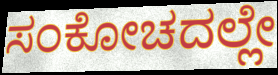
ಸಂಕೋಚದಲ್ಲೇ